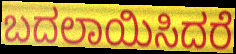
ಬದಲಾಯಿಸಿದರೆ